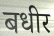
बधीर